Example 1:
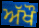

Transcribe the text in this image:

ਅੱਖੌ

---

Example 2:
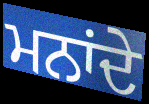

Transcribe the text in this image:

ਮਨਾਂਦੇ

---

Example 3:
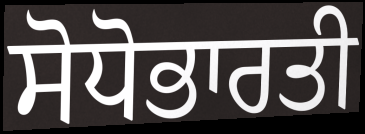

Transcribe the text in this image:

ਸੋਧੋਭਾਰਤੀ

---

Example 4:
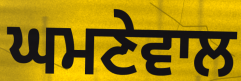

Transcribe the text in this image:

ਘਮਣੇਵਾਲ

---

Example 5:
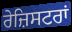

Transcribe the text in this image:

ਰੇਜ਼ਿਸਟਰਾਂ